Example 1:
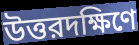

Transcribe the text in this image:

উত্তরদক্ষিণে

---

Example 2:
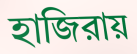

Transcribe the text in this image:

হাজিরায়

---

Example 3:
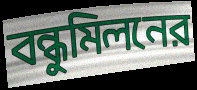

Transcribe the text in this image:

বন্ধুমিলনের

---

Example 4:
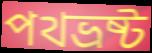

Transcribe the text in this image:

পথভ্রষ্ট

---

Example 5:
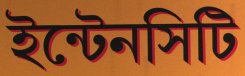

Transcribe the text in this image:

ইন্টেনসিটি